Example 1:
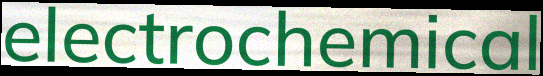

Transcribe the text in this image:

electrochemical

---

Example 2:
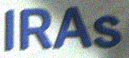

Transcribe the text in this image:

IRAs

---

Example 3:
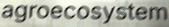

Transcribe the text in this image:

agroecosystem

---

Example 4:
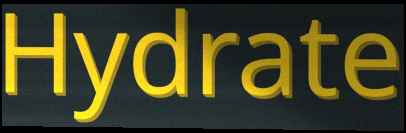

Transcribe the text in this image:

Hydrate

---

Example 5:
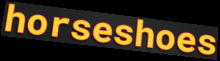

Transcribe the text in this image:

horseshoes